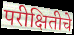
परीक्षितीचे